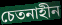
চেতনাহীন